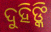
ଦୁହିଙ୍କି